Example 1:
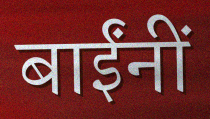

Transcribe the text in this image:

बाईंनीं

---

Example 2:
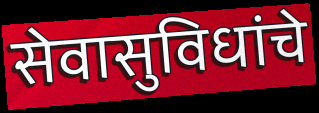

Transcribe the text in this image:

सेवासुविधांचे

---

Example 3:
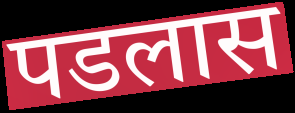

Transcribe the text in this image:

पडलास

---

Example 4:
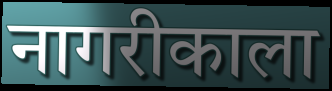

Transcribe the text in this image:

नागरीकाला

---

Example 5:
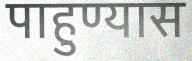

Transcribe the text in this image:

पाहुण्यास